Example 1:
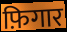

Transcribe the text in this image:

फ़िगार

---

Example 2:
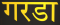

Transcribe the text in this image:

गरडा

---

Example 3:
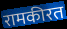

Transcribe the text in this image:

रामकीरत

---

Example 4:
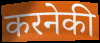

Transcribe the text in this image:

करनेकी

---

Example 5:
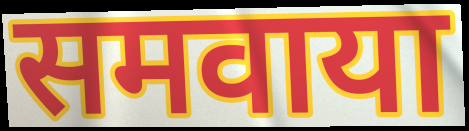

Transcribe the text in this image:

समवाया